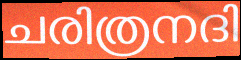
ചരിത്രനദി